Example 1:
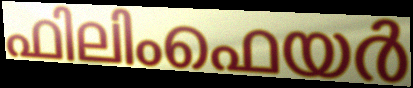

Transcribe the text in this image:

ഫിലിംഫെയർ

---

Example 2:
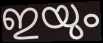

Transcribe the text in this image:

ഇയും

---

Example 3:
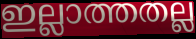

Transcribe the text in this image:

ഇല്ലാത്തതല്ല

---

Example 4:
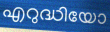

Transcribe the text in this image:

എറുദ്ധിയോ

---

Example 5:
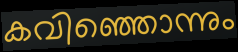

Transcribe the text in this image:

കവിഞ്ഞൊന്നും